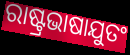
ରାଷ୍ଟ୍ରଭାଷାଯୁତଂ